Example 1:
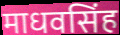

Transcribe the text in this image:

माधवसिंह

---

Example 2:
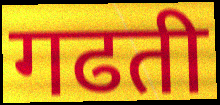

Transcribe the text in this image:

गढती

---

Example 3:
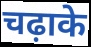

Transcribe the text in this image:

चढ़ाके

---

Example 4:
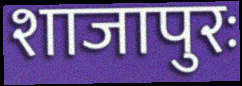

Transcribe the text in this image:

शाजापुरः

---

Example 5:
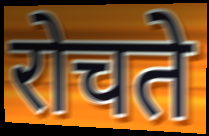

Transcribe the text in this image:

रोचते